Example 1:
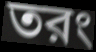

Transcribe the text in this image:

তরং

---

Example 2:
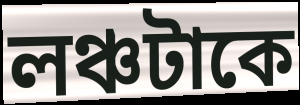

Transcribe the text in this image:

লঞ্চটাকে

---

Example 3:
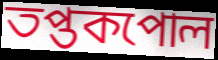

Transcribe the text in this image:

তপ্তকপোল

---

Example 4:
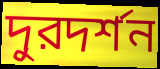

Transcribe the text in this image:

দুরদর্শন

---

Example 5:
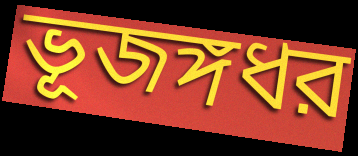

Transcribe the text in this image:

ভূজঙ্গধর